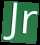
Jr